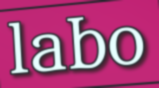
labo